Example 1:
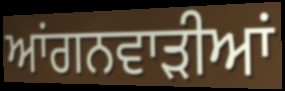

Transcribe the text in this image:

ਆਂਗਨਵਾੜੀਆਂ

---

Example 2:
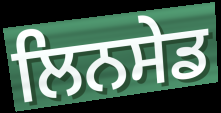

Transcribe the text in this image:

ਲਿਨਸੇਡ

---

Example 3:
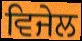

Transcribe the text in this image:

ਵਿਜੇਲ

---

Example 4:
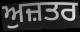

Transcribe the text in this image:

ਅੁਜ਼ਤਰ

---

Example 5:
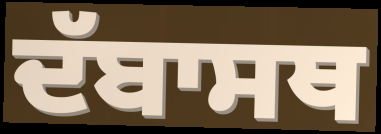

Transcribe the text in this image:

ਦੱਬਾਸਥ